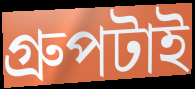
গ্রুপটাই